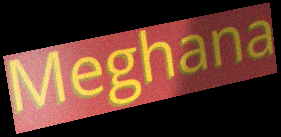
Meghana